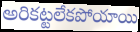
అరికట్టలేకపోయాయి